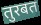
तुरबत